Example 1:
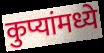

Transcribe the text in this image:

कुप्यांमध्ये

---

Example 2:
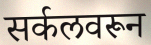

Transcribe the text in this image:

सर्कलवरून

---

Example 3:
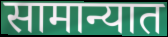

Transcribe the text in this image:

सामान्यात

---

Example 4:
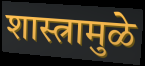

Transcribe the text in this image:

शास्त्रामुळे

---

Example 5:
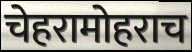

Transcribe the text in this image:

चेहरामोहराच